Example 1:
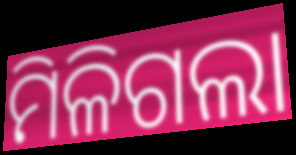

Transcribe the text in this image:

ମିଳିଗଲା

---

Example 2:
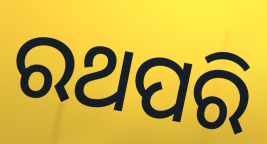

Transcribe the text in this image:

ରଥପରି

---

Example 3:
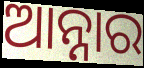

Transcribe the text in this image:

ଆନ୍ନାର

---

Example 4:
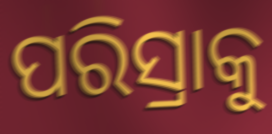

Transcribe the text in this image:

ପରିସ୍ରାକୁ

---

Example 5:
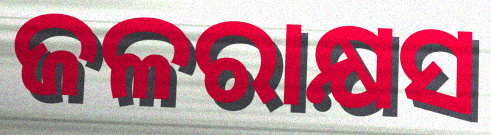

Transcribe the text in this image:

ଜଳରାକ୍ଷସ